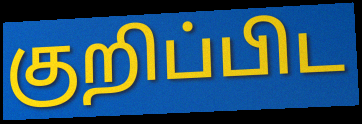
குறிப்பிட